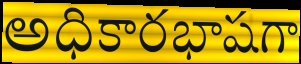
అధికారభాషగా